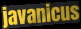
javanicus